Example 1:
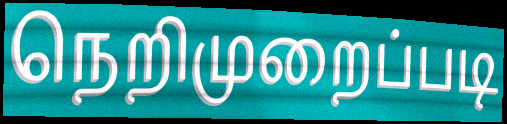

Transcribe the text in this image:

நெறிமுறைப்படி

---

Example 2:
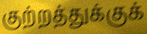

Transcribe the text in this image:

குற்றத்துக்குக்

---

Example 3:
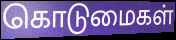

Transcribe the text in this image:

கொடுமைகள்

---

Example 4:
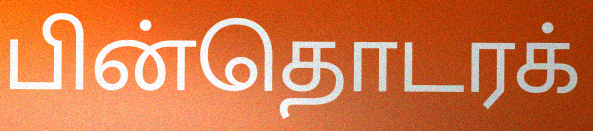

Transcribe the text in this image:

பின்தொடரக்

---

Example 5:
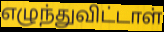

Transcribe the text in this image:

எழுந்துவிட்டாள்